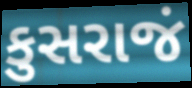
કુસરાજં